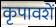
कृपावशें